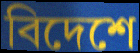
বিদেশে